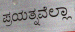
ಪ್ರಯತ್ನವೆಲ್ಲಾ